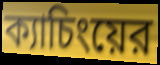
ক্যাচিংয়ের